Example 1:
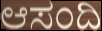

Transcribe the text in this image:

ಆಸಂದಿ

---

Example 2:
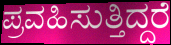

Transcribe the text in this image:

ಪ್ರವಹಿಸುತ್ತಿದ್ದರೆ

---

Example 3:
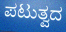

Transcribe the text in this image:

ಪಟುತ್ವದ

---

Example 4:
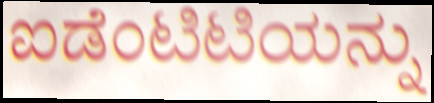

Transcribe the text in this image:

ಐಡೆಂಟಿಟಿಯನ್ನು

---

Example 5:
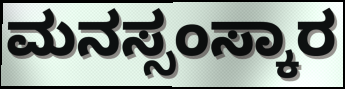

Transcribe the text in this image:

ಮನಸ್ಸಂಸ್ಕಾರ